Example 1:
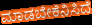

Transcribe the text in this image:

ಮಾಡಬೇಕೆನಿಸಿದೆ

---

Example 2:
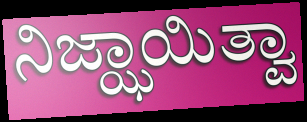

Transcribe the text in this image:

ನಿಜ್ಝಾಯಿತ್ವಾ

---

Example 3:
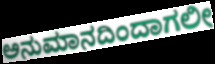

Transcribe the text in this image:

ಅನುಮಾನದಿಂದಾಗಲೀ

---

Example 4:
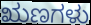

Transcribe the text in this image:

ಋಣಗಳು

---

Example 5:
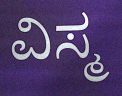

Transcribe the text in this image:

ವಿಸ್ಮ